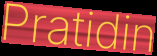
Pratidin